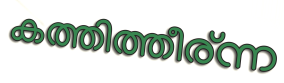
കത്തിത്തീര്ന്ന